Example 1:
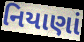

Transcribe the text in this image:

નિયાણાં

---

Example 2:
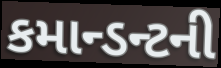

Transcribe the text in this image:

કમાન્ડન્ટની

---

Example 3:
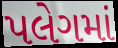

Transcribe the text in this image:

પલેગમાં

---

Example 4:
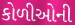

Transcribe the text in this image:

કોળીઓની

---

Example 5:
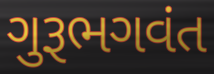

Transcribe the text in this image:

ગુરૂભગવંત